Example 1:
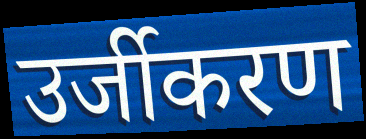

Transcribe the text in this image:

उर्जीकरण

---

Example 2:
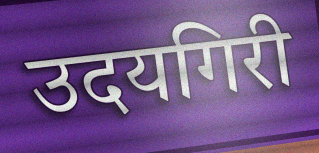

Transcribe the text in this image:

उदयगिरी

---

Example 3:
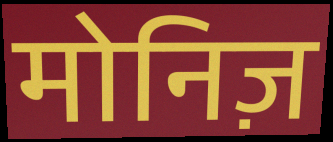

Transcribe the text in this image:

मोनिज़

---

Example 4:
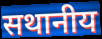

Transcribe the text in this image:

सथानीय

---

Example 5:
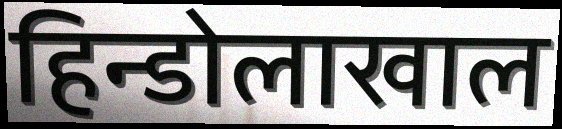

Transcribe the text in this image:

हिन्डोलाखाल